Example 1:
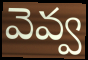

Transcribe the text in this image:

వెవ్వ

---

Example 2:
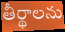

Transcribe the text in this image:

తీర్థాలను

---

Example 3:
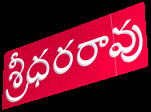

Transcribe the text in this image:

శ్రీధరరావు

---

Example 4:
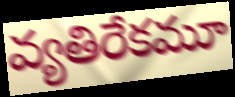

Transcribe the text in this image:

వ్యతిరేకమూ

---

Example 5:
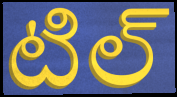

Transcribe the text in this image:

టిల్